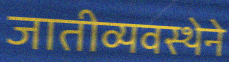
जातीव्यवस्थेने